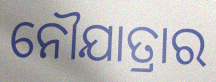
ନୌଯାତ୍ରାର